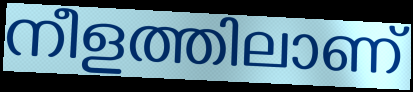
നീളത്തിലാണ്